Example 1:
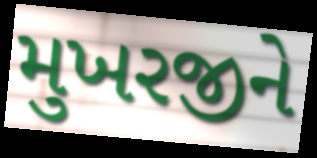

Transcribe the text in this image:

મુખરજીને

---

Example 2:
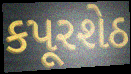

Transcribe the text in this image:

કપૂરશેઠ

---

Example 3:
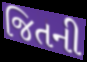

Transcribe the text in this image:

જિતની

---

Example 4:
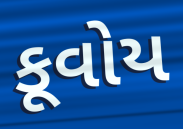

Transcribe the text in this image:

કૂવોય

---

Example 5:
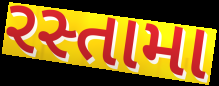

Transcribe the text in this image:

રસ્તામા